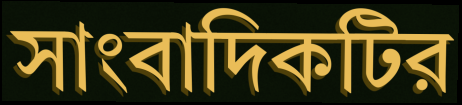
সাংবাদিকটির